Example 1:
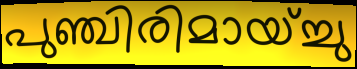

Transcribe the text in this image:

പുഞ്ചിരിമായ്ച്ചു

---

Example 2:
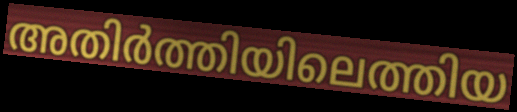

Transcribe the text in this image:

അതിർത്തിയിലെത്തിയ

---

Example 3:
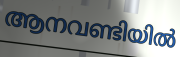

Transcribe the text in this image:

ആനവണ്ടിയിൽ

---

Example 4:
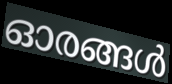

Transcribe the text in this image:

ഓരങ്ങൾ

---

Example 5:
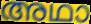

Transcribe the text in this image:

അഥാ